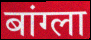
बांग्‍ला